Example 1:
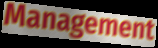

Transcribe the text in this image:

Management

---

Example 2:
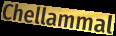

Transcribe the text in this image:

Chellammal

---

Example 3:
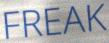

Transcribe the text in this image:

FREAK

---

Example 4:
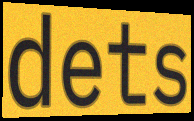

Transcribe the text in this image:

dets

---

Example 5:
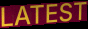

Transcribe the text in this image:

LATEST